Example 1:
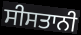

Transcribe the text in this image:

ਸੀਸਤਾਨੀ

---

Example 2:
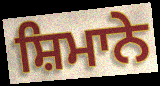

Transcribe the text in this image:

ਸ਼ਿਮਾਨੇ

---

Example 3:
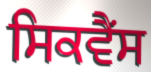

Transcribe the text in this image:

ਸਿਕਵੈਂਸ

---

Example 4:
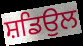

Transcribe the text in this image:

ਸ਼ਡਿਉਲ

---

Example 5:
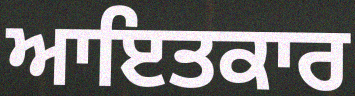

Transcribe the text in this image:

ਆਇਤਕਾਰ